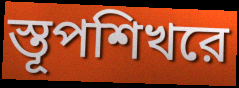
স্তূপশিখরে